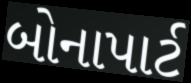
બોનાપાર્ટ